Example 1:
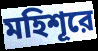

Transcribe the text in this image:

মহিশূরে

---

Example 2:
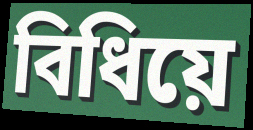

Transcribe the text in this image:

বিধিয়ে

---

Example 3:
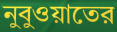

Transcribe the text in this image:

নুবুওয়াতের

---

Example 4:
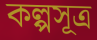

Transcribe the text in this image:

কল্পসূত্র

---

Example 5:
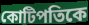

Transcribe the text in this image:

কোটিপতিকে